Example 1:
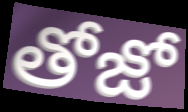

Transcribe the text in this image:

తోజో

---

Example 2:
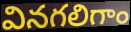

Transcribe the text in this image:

వినగలిగాం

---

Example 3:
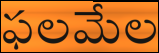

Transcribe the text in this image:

ఫలమేల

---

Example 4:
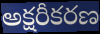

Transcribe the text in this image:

అక్షరీకరణ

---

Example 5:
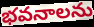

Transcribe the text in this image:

భవనాలను